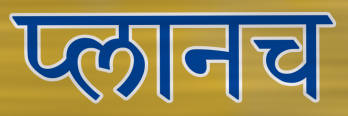
प्लानच